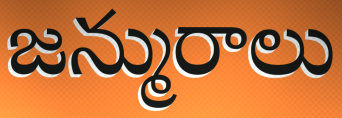
జన్మురాలు